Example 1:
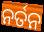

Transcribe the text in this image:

ନର୍ତନ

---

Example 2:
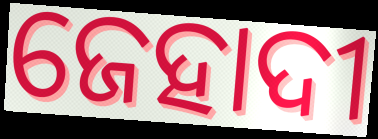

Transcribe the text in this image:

ଜେହାଦୀ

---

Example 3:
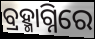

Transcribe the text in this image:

ବ୍ରହ୍ମାଗ୍ନିରେ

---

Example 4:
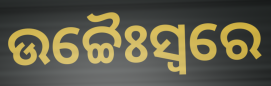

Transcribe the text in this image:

ଉଚ୍ଚୈଃସ୍ୱରେ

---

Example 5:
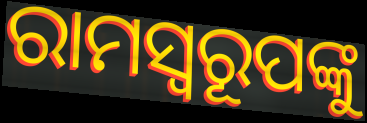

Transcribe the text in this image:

ରାମସ୍ୱରୂପଙ୍କୁ